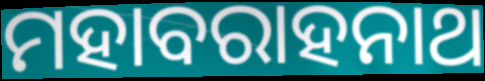
ମହାବରାହନାଥ